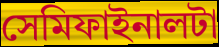
সেমিফাইনালটা